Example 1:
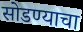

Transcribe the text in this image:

सोडण्याचा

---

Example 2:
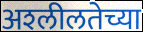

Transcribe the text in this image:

अश्‍लीलतेच्या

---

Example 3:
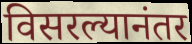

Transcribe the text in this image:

विसरल्यानंतर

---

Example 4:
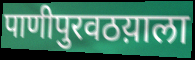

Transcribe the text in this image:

पाणीपुरवठय़ाला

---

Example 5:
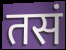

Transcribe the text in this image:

तसं